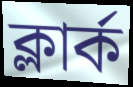
ক্লাৰ্ক